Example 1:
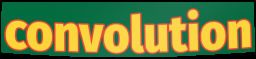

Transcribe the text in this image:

convolution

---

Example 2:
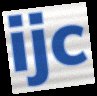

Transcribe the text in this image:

ijc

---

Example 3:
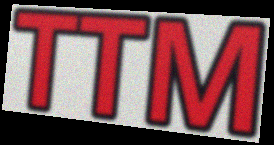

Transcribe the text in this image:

TTM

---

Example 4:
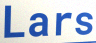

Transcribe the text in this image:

Lars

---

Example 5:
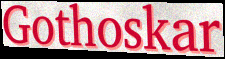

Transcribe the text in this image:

Gothoskar